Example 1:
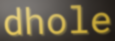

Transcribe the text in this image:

dhole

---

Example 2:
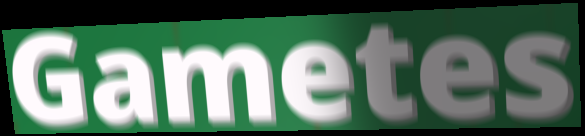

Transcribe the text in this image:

Gametes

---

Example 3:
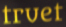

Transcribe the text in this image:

truet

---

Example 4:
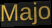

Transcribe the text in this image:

Majo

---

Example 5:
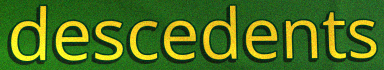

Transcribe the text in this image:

descedents